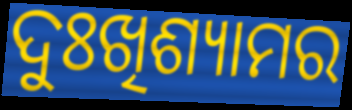
ଦୁଃଖିଶ୍ୟାମର